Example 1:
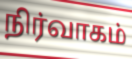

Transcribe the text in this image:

நிர்வாகம்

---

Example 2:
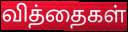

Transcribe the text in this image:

வித்தைகள்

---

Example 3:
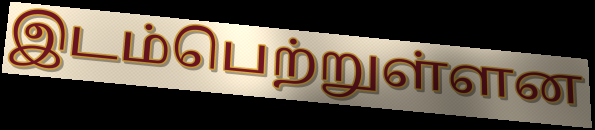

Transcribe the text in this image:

இடம்பெற்றுள்ளன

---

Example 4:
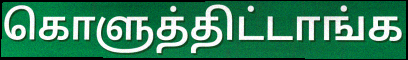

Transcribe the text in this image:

கொளுத்திட்டாங்க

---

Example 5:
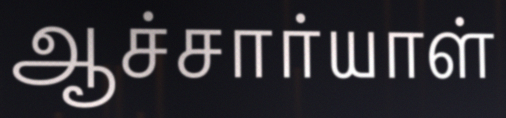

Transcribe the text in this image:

ஆச்சார்யாள்